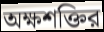
অক্ষশক্তির